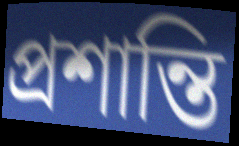
প্ৰশান্তি